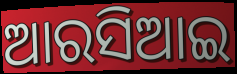
ଆରସିଆଇ